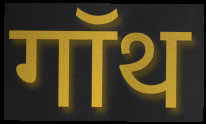
गॉथ